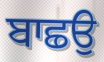
ਬਾਛਉ